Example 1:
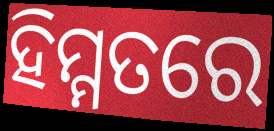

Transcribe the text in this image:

ହିମ୍ମତରେ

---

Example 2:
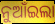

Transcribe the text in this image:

ନୁଆଁଇଲା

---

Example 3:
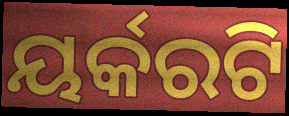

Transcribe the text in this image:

ୟର୍କରଟି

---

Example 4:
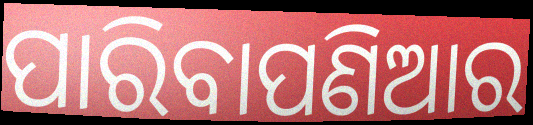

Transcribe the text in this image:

ପାରିବାପଣିଆର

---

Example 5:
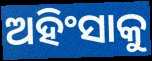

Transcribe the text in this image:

ଅହିଂସାକୁ